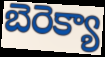
బెరెక్యా